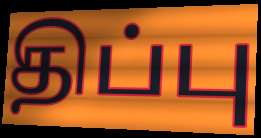
திப்பு